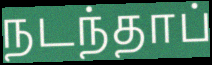
நடந்தாப்